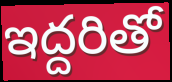
ఇద్దరితో